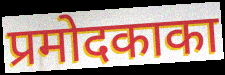
प्रमोदकाका